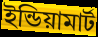
ইন্ডিয়ামার্ট